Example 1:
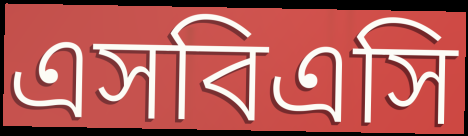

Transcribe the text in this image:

এসবিএসি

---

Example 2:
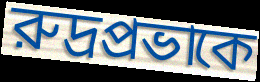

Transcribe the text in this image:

রুদ্রপ্রভাকে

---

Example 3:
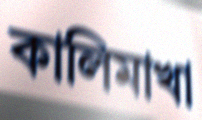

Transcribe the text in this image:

কালিমাখা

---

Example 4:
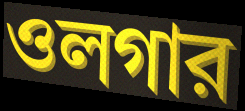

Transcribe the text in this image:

ওলগার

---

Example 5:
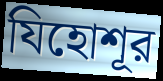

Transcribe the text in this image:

যিহোশূর